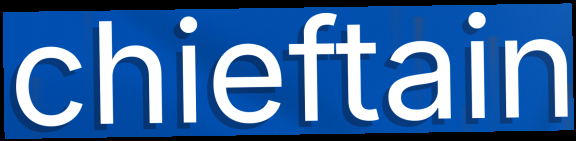
chieftain